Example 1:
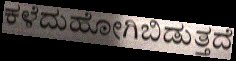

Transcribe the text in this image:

ಕಳೆದುಹೋಗಿಬಿಡುತ್ತದೆ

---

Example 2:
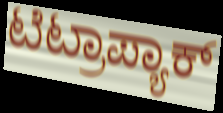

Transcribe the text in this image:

ಟೆಟ್ರಾಪ್ಯಾಕ್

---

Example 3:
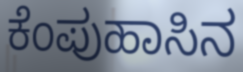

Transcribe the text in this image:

ಕೆಂಪುಹಾಸಿನ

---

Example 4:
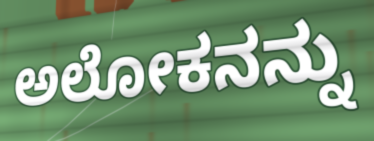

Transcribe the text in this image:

ಅಲೋಕನನ್ನು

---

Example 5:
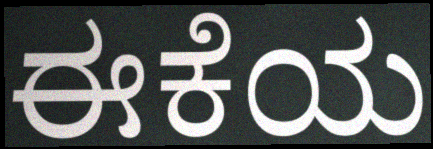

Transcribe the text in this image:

ಈಕೆಯ